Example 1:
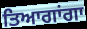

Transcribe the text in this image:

ਤਿਆਗਾਂਗਾ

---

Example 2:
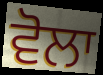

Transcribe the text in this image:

ਵੋਲਾ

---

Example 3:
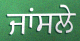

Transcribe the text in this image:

ਜਾਂਸਲੇ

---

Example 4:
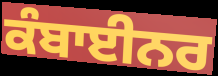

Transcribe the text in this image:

ਕੰਬਾਈਨਰ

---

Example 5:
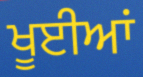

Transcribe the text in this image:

ਖੂਈਆਂ